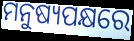
ମନୁଷ୍ୟପକ୍ଷରେ